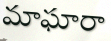
మాఘారా